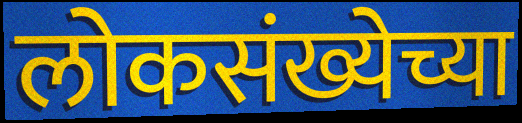
लोकसंख्येच्या